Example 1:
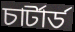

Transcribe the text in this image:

চার্টার্ড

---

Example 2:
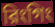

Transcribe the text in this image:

রিংগিং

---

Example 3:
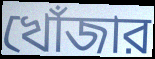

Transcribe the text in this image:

খোঁজার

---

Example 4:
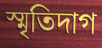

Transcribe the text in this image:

স্মৃতিদাগ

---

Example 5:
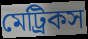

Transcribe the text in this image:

মেট্রিকস